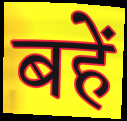
बहें